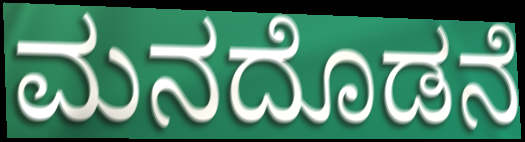
ಮನದೊಡನೆ